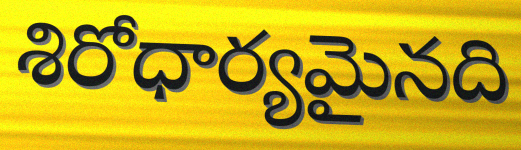
శిరోధార్యమైనది